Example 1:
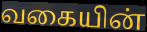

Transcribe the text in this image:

வகையின்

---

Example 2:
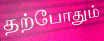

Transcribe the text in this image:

தற்போதும்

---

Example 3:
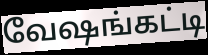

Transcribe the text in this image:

வேஷங்கட்டி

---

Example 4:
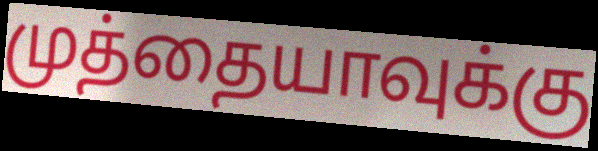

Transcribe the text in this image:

முத்தையாவுக்கு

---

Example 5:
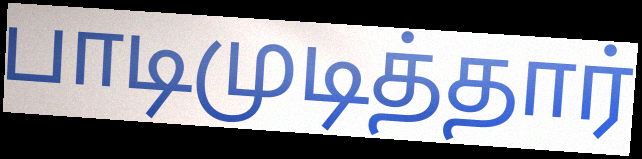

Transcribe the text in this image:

பாடிமுடித்தார்